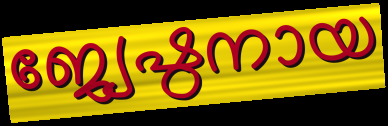
ജ്യേഷ്ഠനായ